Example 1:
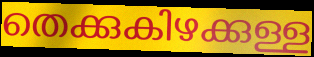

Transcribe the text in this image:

തെക്കുകിഴക്കുള്ള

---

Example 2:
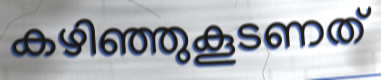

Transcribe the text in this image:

കഴിഞ്ഞുകൂടണത്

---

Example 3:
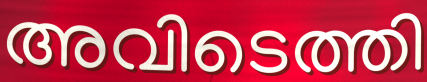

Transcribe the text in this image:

അവിടെത്തി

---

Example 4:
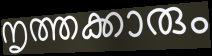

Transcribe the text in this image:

നൃത്തക്കാരും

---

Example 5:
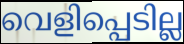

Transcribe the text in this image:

വെളിപ്പെടില്ല